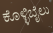
ಕೊಳ್ಳಿಬೈಲು